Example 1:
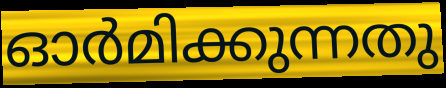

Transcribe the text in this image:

ഓർമിക്കുന്നതു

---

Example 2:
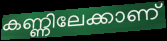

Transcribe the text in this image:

കണ്ണിലേക്കാണ്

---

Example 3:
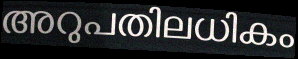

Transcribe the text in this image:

അറുപതിലധികം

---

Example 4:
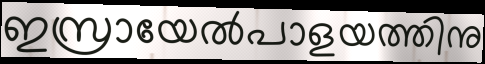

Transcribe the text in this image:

ഇസ്രായേൽപാളയത്തിനു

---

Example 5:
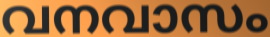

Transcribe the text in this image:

വനവാസം